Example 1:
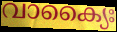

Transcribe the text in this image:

വാക്യൈഃ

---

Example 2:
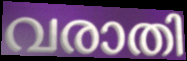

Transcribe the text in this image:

വരാതി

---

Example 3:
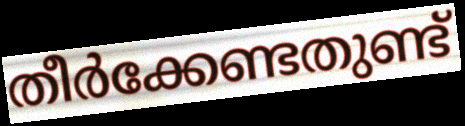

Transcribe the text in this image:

തീർക്കേണ്ടതുണ്ട്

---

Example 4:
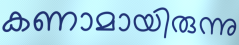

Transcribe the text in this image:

കണാമായിരുന്നു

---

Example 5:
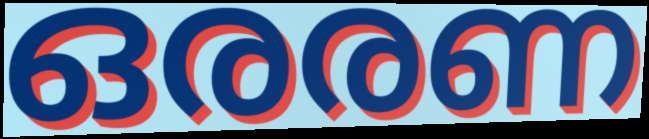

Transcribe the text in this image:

ഒരരണ